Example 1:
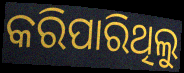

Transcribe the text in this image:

କରିପାରିଥିଲୁ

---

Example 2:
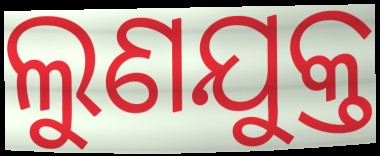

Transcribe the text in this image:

ଲୁଣଯୁକ୍ତ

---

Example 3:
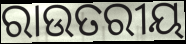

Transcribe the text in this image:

ରାଉତରୀୟ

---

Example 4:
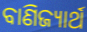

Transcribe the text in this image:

ବାଣିଜ୍ୟାର୍ଥ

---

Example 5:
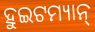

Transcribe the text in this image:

ହୁଇଟମ୍ୟାନ୍